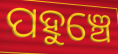
ପହୁଞ୍ଚେ